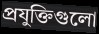
প্রযুক্তিগুলো